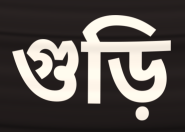
গুড়ি